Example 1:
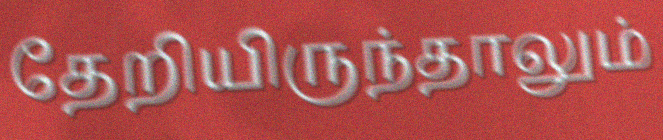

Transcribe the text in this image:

தேறியிருந்தாலும்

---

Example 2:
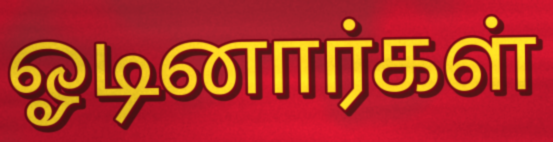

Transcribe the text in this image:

ஓடினார்கள்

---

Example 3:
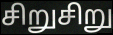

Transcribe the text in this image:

சிறுசிறு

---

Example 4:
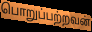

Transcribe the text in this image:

பொறுப்பற்றவன்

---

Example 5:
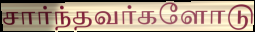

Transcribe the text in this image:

சார்ந்தவர்களோடு